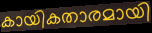
കായികതാരമായി